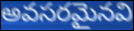
అవసరమైనవి